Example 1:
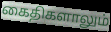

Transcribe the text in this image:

கைதிகளாலும்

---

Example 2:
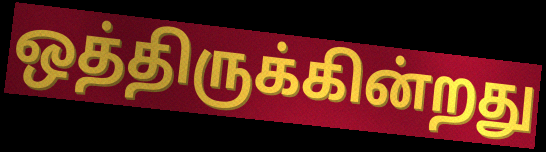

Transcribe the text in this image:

ஒத்திருக்கின்றது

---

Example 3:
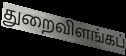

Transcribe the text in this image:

துறைவிளங்கப்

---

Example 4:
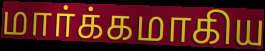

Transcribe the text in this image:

மார்க்கமாகிய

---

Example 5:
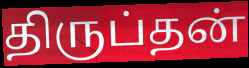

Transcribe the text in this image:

திருப்தன்